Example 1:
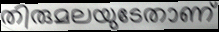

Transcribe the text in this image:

തിരുമലയുടേതാണ്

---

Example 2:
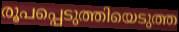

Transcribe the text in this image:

രൂപപ്പെടുത്തിയെടുത്ത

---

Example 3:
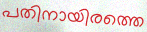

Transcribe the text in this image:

പതിനായിരത്തെ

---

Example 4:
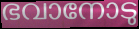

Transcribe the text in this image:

ഭവാനോടു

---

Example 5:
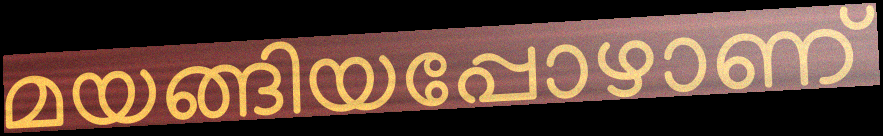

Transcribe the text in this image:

മയങ്ങിയപ്പോഴാണ്